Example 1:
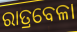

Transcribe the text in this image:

ରାତ୍ରବେଳା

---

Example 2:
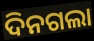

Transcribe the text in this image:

ଦିନଗଲା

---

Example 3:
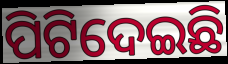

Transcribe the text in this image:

ପିଟିଦେଇଛି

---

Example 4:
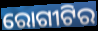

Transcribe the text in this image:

ରୋଗୀଟିର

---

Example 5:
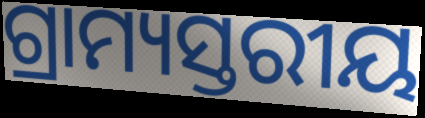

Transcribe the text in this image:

ଗ୍ରାମ୍ୟସ୍ତରୀୟ